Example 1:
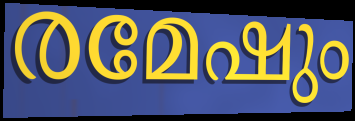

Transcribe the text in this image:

രമേഷും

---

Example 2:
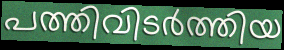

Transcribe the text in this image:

പത്തിവിടർത്തിയ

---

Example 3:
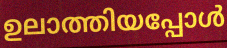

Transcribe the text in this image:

ഉലാത്തിയപ്പോൾ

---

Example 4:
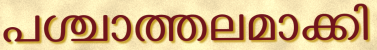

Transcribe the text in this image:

പശ്ചാത്തലമാക്കി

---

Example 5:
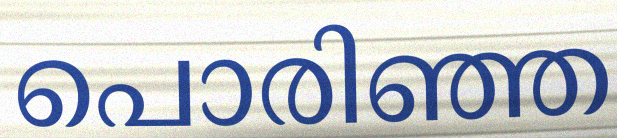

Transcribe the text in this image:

പൊരിഞ്ഞ